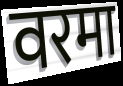
वरमा